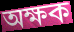
অক্ষক